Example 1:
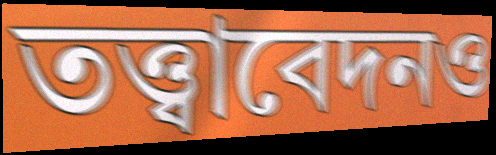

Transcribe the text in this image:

তত্ত্বাবেদনও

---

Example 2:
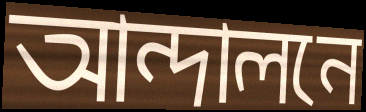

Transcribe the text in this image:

আন্দালনে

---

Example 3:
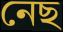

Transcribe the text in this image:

নেছ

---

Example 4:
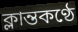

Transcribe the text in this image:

ক্লান্তকণ্ঠে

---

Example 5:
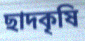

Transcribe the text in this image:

ছাদকৃষি